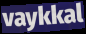
vaykkal